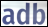
adb